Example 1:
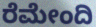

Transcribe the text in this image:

ರೆಮೇಂದಿ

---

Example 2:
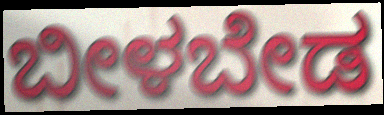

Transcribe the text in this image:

ಬೀಳಬೇಡ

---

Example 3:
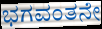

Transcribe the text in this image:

ಭಗವಂತನೇ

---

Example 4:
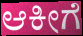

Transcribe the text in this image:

ಆಕೀಗೆ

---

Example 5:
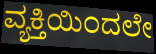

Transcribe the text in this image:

ವ್ಯಕ್ತಿಯಿಂದಲೇ